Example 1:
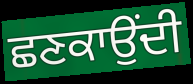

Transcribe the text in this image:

ਛਣਕਾਉਂਦੀ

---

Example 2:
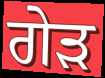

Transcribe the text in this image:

ਗੇੜ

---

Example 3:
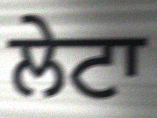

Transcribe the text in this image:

ਲੇਟਾ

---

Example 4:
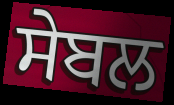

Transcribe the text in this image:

ਸੇਬਲ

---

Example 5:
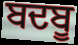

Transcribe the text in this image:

ਬਦਬੂ